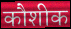
कौशीक